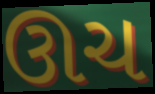
ઊચ